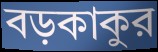
বড়কাকুর